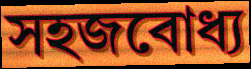
সহজবোধ্য